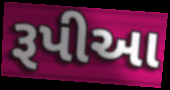
રૂપીઆ